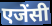
एजेंसी